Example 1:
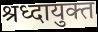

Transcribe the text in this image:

श्रध्दायुक्त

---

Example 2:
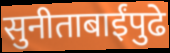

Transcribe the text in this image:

सुनीताबाईंपुढे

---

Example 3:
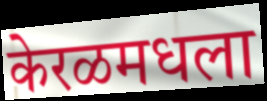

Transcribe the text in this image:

केरळमधला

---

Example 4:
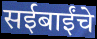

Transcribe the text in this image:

सईबाईंचे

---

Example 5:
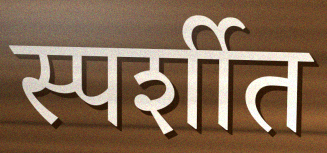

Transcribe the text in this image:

स्पर्शीत